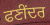
ਫਣੀਂਦਰ